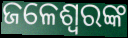
ଜଳେଶ୍ଵରଙ୍କ